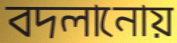
বদলানোয়